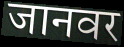
जानवर